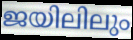
ജയിലിലും